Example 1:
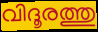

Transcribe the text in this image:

വിദൂരത്തു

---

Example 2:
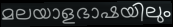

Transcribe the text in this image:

മലയാളഭാഷയിലും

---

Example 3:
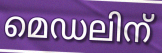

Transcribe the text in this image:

മെഡലിന്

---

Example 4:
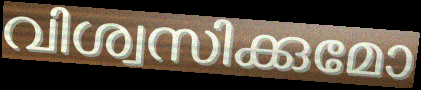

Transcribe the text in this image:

വിശ്വസിക്കുമോ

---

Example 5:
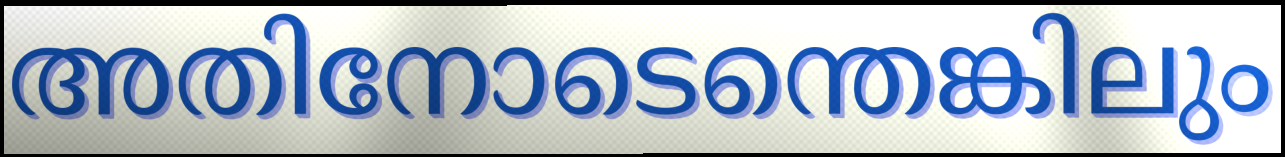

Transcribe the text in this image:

അതിനോടെന്തെങ്കിലും